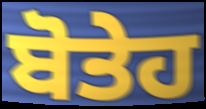
ਬੋਤੇਹ